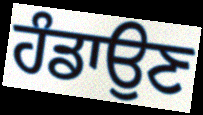
ਹੰਡਾਉਣ